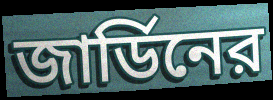
জার্ডিনের